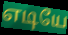
எடியே